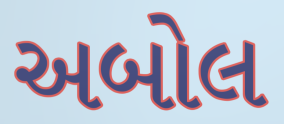
અબોલ